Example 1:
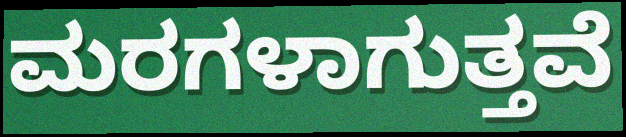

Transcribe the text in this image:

ಮರಗಳಾಗುತ್ತವೆ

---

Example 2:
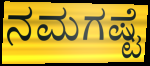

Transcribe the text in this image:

ನಮಗಷ್ಟೆ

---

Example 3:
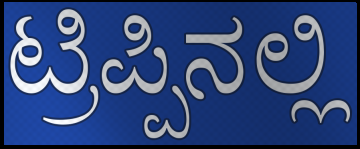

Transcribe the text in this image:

ಟ್ರಿಪ್ಪಿನಲ್ಲಿ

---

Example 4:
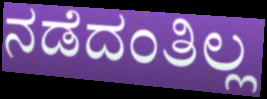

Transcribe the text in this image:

ನಡೆದಂತಿಲ್ಲ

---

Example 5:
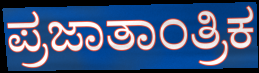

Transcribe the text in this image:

ಪ್ರಜಾತಾಂತ್ರಿಕ